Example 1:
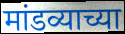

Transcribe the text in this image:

मांडव्याच्या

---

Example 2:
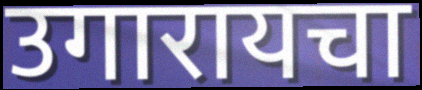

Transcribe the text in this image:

उगारायचा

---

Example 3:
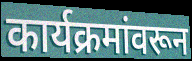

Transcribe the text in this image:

कार्यक्रमांवरून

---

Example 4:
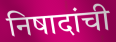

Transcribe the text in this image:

निषादांची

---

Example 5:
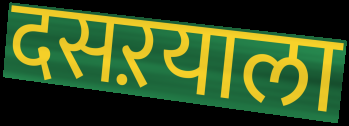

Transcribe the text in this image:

दसऱयाला